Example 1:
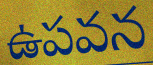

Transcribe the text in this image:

ఉపవన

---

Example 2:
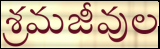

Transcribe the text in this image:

శ్రమజీవుల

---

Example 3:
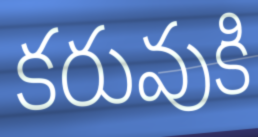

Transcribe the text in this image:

కరువుకి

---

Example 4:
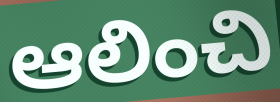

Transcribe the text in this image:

ఆలించి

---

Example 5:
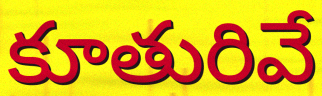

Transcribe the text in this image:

కూతురివే